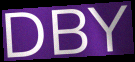
DBY